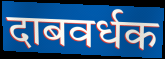
दाबवर्धक